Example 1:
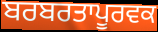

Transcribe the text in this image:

ਬਰਬਰਤਾਪੂਰਵਕ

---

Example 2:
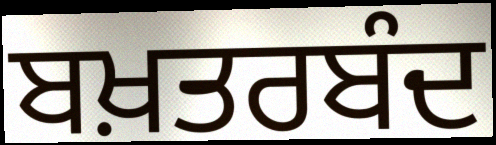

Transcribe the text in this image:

ਬਖ਼ਤਰਬੰਦ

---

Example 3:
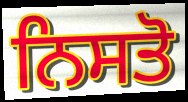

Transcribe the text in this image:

ਨਿਸਤੋ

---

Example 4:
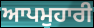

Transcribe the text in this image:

ਆਪਮੁਹਾਰੀ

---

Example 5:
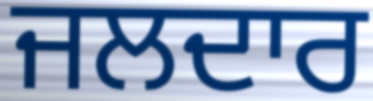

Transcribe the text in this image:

ਜਲਦਾਰ